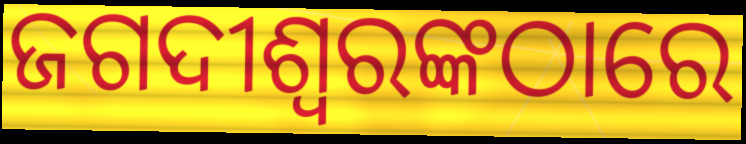
ଜଗଦୀଶ୍ୱରଙ୍କଠାରେ